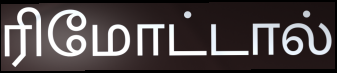
ரிமோட்டால்